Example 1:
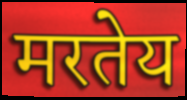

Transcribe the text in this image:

मरतेय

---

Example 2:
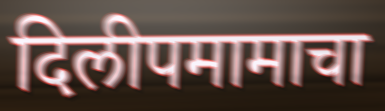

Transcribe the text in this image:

दिलीपमामाचा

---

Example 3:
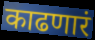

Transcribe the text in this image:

काढणारं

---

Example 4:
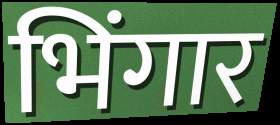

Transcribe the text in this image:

भिंगार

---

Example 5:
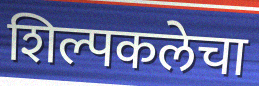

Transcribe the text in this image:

शिल्पकलेचा